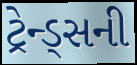
ટ્રેન્ડ્સની